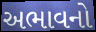
અભાવનો